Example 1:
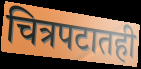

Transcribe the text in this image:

चित्रपटातही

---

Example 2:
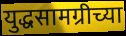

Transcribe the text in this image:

युद्धसामग्रीच्या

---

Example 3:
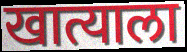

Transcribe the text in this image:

खात्याला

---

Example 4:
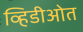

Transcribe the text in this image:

व्हिडीओत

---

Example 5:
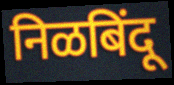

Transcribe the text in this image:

निळबिंदू